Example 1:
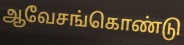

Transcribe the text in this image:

ஆவேசங்கொண்டு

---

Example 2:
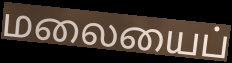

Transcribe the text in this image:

மலையைப்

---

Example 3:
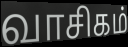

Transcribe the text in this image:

வாசிகம்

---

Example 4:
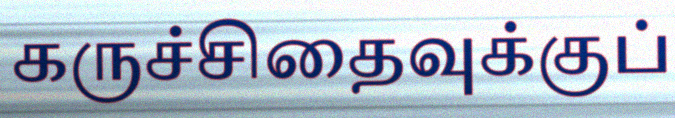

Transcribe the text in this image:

கருச்சிதைவுக்குப்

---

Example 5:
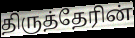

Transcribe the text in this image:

திருத்தேரின்